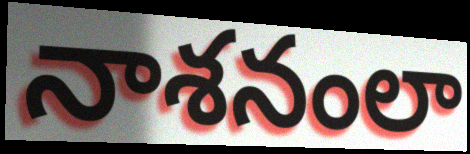
నాశనంలా